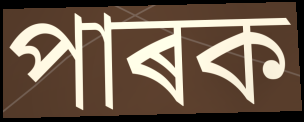
পাৰক